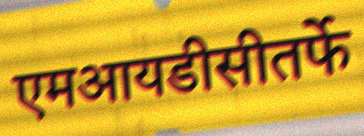
एमआयडीसीतर्फे